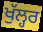
ਖੁੱਲ੍ਹਰ